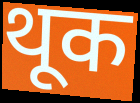
थूक